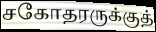
சகோதரருக்குத்